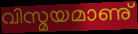
വിസ്മയമാണു്